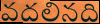
వదలినది